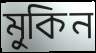
মুকিন